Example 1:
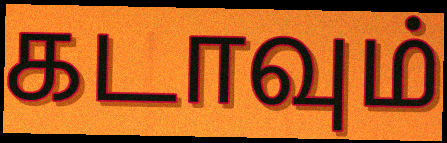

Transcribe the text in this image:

கடாவும்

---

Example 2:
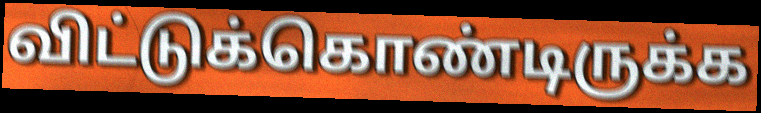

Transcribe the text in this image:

விட்டுக்கொண்டிருக்க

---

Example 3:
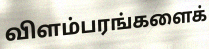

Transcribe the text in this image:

விளம்பரங்களைக்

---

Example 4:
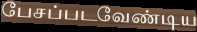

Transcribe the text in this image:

பேசப்படவேண்டிய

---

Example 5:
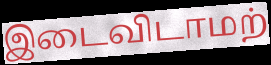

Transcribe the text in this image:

இடைவிடாமற்